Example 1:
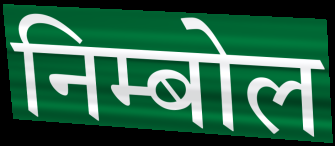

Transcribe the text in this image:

निम्बोल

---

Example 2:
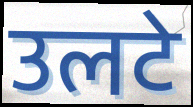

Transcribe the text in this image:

उलटे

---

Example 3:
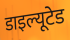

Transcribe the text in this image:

डाइल्यूटेड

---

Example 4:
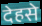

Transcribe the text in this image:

देहसे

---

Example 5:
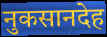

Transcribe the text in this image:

नुकसानदेह